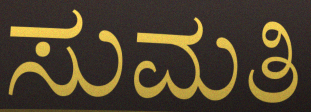
ಸುಮತಿ